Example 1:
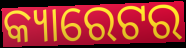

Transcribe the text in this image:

କ୍ୟାରେଟର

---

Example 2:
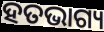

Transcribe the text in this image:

ହତଭାଗ୍ୟ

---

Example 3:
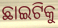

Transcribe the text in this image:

ଛାଇଟିକୁ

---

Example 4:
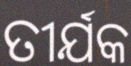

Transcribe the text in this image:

ତୀର୍ଯକ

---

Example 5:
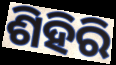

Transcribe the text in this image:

ଶିହିରି